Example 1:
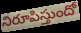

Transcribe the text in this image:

నిరూపిస్తుందో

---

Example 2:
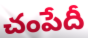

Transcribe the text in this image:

చంపేదీ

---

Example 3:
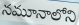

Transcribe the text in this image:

నమూనాలోని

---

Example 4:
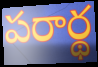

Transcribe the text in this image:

పరార్థ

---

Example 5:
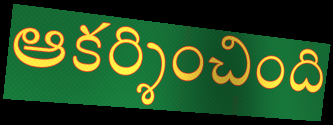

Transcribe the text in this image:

ఆకర్శించింది